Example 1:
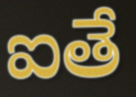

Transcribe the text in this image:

ఐతే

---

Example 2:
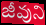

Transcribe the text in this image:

జీవుని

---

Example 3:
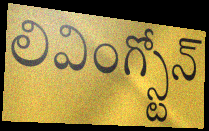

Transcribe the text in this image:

లివింగ్స్టోన్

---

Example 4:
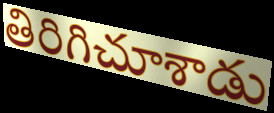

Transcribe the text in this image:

తిరిగిచూశాడు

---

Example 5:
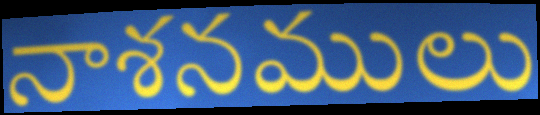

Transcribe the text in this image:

నాశనములు